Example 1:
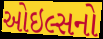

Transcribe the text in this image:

ઓઇલ્સનો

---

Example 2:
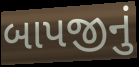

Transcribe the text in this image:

બાપજીનું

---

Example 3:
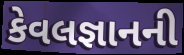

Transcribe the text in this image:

કેવલજ્ઞાનની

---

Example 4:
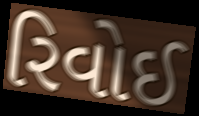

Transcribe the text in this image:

રિવોઈ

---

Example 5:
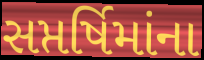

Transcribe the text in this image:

સપ્તર્ષિમાંના